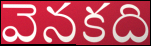
వెనకది